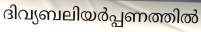
ദിവ്യബലിയർപ്പണത്തിൽ